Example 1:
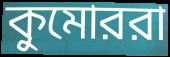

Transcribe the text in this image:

কুমোররা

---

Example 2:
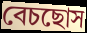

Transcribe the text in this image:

বেচছোস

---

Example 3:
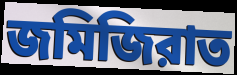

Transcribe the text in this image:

জমিজিরাত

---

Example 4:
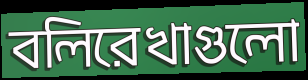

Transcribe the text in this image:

বলিরেখাগুলো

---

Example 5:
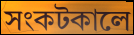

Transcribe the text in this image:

সংকটকালে